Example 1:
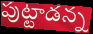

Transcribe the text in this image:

పుట్టాడన్న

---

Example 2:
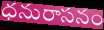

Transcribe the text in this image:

ధనురాసనం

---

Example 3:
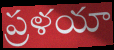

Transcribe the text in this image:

ప్రళయా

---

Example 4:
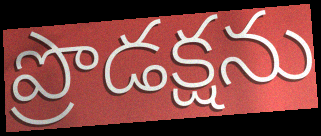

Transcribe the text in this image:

ప్రొడక్షను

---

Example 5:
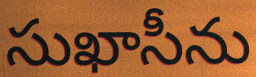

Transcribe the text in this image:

సుఖాసీను